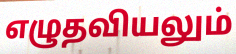
எழுதவியலும்